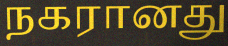
நகரானது